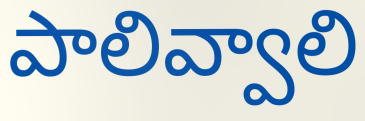
పాలివ్వాలి